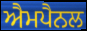
ਐਮਪੈਨਲ